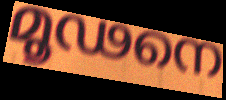
മൂഢനെ